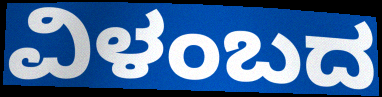
ವಿಳಂಬದ